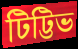
টিট্টিভ